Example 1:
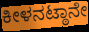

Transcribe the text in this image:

ಕೀಳನಟ್ಠಾನೇ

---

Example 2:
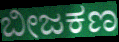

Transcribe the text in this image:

ಬೀಜಕಣ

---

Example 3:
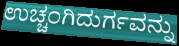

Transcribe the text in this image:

ಉಚ್ಚಂಗಿದುರ್ಗವನ್ನು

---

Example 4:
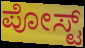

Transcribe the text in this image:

ಪೋಸ್ಟ್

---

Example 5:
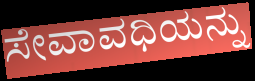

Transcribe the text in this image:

ಸೇವಾವಧಿಯನ್ನು